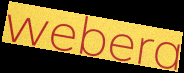
webera